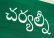
చర్యల్నీ